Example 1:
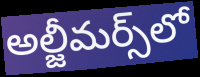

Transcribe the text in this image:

అల్జీమర్స్‌లో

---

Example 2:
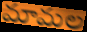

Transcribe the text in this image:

మామల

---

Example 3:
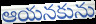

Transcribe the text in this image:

ఆయనకును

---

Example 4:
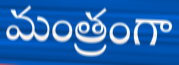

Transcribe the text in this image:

మంత్రంగా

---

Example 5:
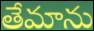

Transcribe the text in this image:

తేమాను